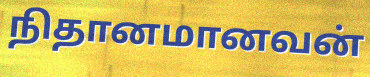
நிதானமானவன்